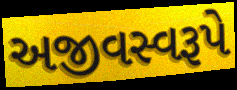
અજીવસ્વરૂપે